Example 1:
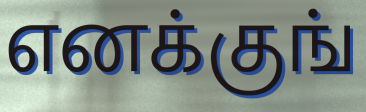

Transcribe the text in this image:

எனக்குங்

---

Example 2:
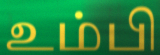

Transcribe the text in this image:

உம்பி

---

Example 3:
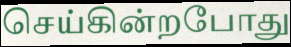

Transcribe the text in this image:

செய்கின்றபோது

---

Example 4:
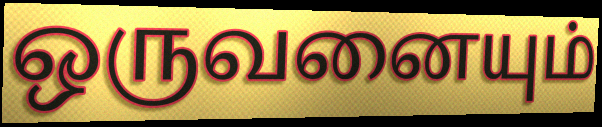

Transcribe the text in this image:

ஒருவனையும்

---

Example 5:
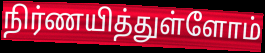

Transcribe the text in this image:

நிர்ணயித்துள்ளோம்